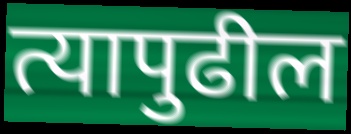
त्यापुढील